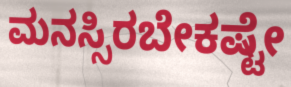
ಮನಸ್ಸಿರಬೇಕಷ್ಟೇ